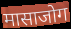
मासाजोग